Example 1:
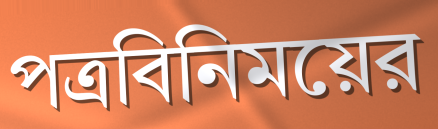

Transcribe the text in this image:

পত্রবিনিময়ের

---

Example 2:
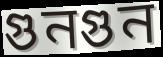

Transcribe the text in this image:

গুনগুন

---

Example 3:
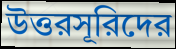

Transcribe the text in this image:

উত্তরসূরিদের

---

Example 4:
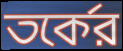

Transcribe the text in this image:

তর্কের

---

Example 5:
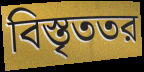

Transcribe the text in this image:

বিস্তৃততর